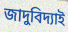
জাদুবিদ্যাই